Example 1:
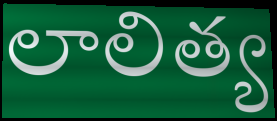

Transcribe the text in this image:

లాలిత్య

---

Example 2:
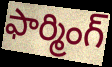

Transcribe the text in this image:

ఫార్మింగ్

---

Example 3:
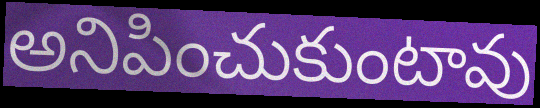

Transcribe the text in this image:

అనిపించుకుంటావు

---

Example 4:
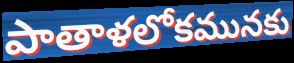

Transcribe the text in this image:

పాతాళలోకమునకు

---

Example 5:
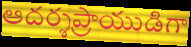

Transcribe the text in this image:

ఆదర్శప్రాయుడిగా